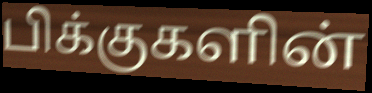
பிக்குகளின்